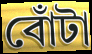
বোঁটা